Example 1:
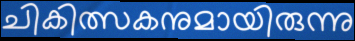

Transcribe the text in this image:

ചികിത്സകനുമായിരുന്നു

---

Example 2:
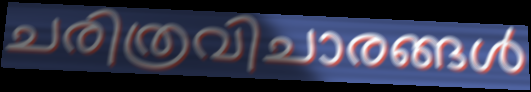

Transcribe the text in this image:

ചരിത്രവിചാരങ്ങൾ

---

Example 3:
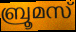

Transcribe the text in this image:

ബ്രൂമസ്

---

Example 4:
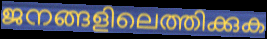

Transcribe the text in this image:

ജനങ്ങളിലെത്തിക്കുക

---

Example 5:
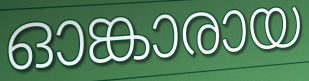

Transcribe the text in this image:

ഓങ്കാരായ